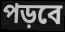
পড়বে